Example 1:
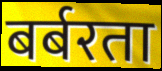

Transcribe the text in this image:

बर्बरता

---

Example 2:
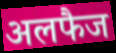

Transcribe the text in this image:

अलफैज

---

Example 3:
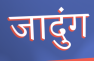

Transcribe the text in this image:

जादुंग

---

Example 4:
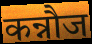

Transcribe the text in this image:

कन्नौज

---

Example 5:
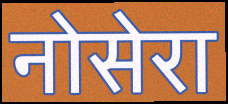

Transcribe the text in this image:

नोसेरा